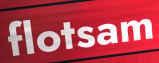
flotsam